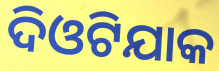
ଦିଓଟିଯାକ